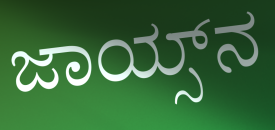
ಜಾಯ್ಸ್‌ನ